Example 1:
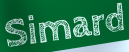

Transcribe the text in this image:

Simard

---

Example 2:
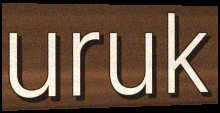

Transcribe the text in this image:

uruk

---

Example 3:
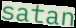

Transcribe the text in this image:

satan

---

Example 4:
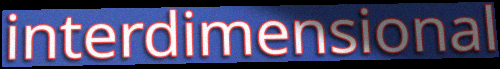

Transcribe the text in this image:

interdimensional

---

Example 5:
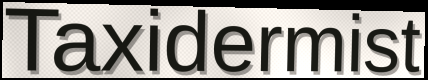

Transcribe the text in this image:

Taxidermist